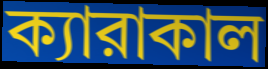
ক্যারাকাল